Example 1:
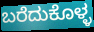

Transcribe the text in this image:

ಬರೆದುಕೊಳ್ಳ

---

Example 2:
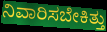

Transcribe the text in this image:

ನಿವಾರಿಸಬೇಕಿತ್ತು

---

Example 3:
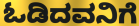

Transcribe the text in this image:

ಓಡಿದವನಿಗೆ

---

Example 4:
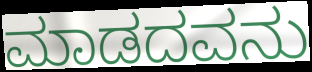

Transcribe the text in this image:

ಮಾಡದವನು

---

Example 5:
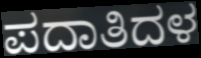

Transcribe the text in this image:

ಪದಾತಿದಳ